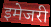
इमेजरी